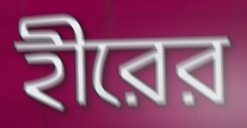
হীরের